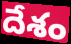
దేశం